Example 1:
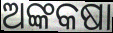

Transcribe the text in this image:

ଅଙ୍କକଷା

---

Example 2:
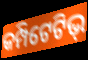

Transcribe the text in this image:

କମ୍ପିଟେଟିଭ୍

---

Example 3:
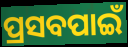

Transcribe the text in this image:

ପ୍ରସବପାଇଁ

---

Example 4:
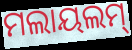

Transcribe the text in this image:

ମଲାୟଲମ୍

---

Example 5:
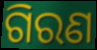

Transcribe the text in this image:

ଗିରଣ